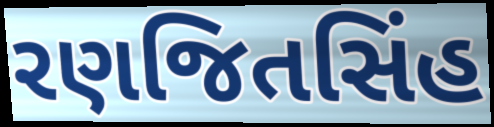
રણજિતસિંહ